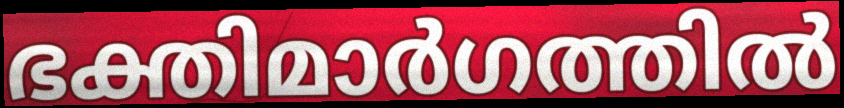
ഭക്തിമാർഗത്തിൽ